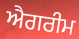
ਐਗਰੀਮ